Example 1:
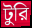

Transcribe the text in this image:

টুরি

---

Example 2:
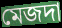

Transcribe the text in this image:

মেজদা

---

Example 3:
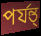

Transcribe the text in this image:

পর্যন্ত্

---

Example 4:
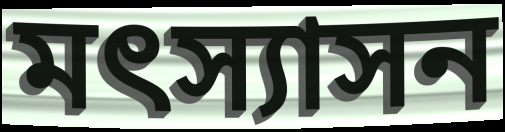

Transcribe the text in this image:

মৎস্যাসন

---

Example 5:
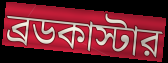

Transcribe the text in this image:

ব্রডকাস্টার